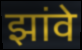
झांवे